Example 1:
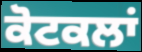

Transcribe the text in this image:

ਕੋਟਕਲਾਂ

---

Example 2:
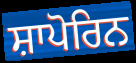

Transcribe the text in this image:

ਸ਼ਾਪੋਰਿਨ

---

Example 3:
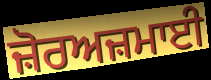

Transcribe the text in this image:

ਜ਼ੋਰਅਜ਼ਮਾਈ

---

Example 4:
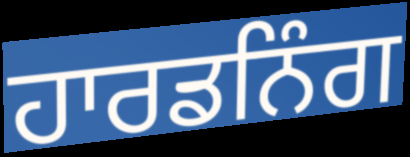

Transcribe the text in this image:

ਹਾਰਡਨਿੰਗ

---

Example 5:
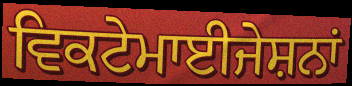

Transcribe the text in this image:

ਵਿਕਟੇਮਾਈਜੇਸ਼ਨਾਂ